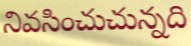
నివసించుచున్నది